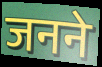
जनने